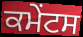
ਕਮੇੰਟਸ